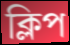
ক্লিপ